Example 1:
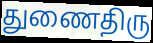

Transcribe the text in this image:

துணைதிரு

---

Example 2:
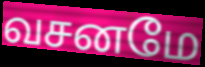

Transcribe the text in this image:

வசனமே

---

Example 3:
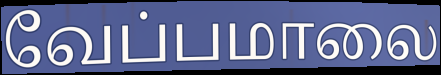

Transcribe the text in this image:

வேப்பமாலை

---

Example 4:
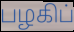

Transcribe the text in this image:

பழகிப்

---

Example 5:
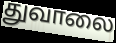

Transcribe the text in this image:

துவாலை